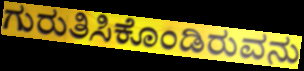
ಗುರುತಿಸಿಕೊಂಡಿರುವನು